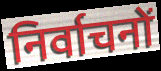
निर्वाचनों